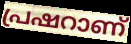
പ്രഷറാണ്